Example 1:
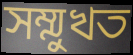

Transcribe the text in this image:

সম্মুখত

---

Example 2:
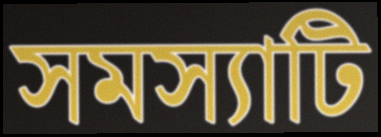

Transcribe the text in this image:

সমস্যাটি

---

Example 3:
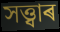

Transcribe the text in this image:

সত্ত্বাৰ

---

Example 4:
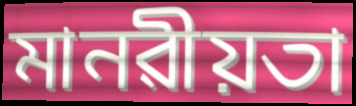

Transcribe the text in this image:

মানৱীয়তা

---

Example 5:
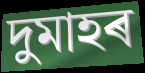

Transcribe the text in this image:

দুমাহৰ